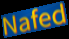
Nafed